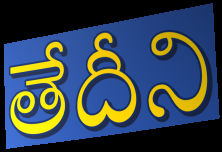
తేదీని